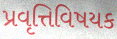
પ્રવૃત્તિવિષયક